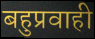
बहुप्रवाही